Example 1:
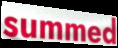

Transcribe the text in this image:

summed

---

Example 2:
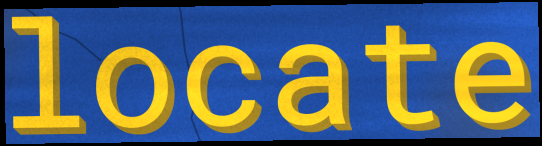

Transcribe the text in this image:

locate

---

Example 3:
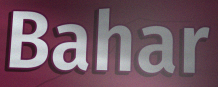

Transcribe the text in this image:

Bahar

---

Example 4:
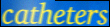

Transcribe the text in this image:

catheters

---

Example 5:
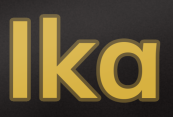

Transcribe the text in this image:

Ika